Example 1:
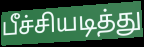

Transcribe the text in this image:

பீச்சியடித்து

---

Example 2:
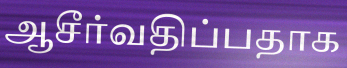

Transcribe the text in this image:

ஆசீர்வதிப்பதாக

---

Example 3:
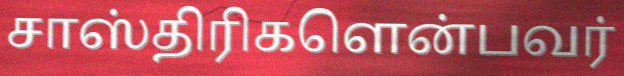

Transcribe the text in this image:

சாஸ்திரிகளென்பவர்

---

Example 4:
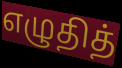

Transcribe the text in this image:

எழுதித்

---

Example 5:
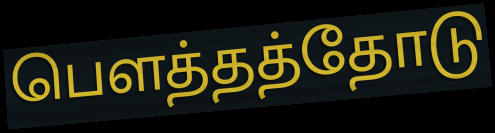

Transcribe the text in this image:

பௌத்தத்தோடு